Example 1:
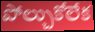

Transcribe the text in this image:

పోల్చుకోలేక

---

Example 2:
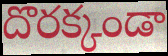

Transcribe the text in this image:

దొరక్కండా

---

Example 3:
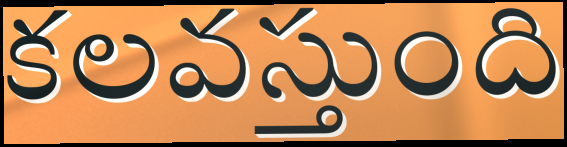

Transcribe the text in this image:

కలవస్తుంది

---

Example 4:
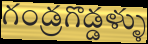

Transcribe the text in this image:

గండ్రగొడ్డళ్ళు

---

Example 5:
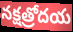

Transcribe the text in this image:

నక్షత్రోదయ